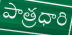
పాత్రధారి